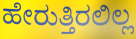
ಹೇರುತ್ತಿರಲಿಲ್ಲ